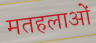
मतहलाओं